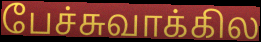
பேச்சுவாக்கில